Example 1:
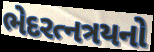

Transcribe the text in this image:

ભેદરત્નત્રયનો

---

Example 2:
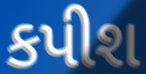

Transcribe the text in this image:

કપીશ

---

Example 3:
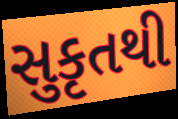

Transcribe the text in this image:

સુકૃતથી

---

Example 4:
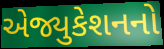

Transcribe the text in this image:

એજ્યુકેશનનો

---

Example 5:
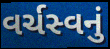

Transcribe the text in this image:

વર્ચસ્વનું